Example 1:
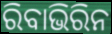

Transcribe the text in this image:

ରିବାଭିରିନ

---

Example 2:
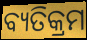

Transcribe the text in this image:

ବ୍ୟତିକ୍ରମ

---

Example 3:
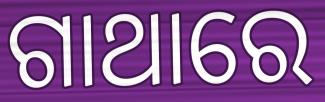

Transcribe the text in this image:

ଗାଥାରେ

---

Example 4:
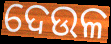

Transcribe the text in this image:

ଦେଉଳ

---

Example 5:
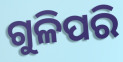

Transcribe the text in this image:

ଗୁଳିପରି